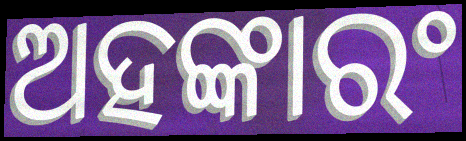
ଅହଙ୍କାରଂ